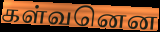
கள்வனென